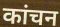
कांचन